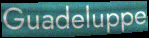
Guadeluppe